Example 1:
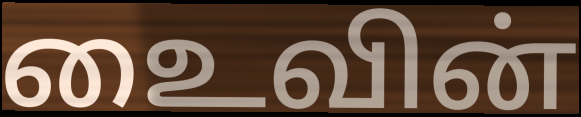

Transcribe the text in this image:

உைவின்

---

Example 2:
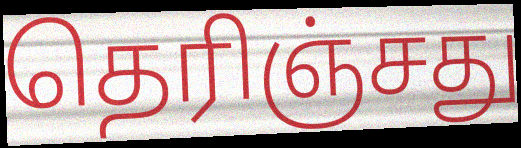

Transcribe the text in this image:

தெரிஞ்சது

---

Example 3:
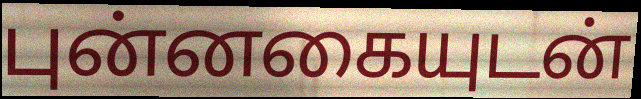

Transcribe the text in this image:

புன்னகையுடன்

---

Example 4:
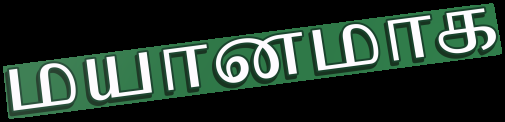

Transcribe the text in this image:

மயானமாக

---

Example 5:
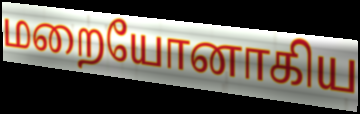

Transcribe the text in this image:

மறையோனாகிய